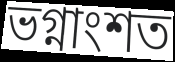
ভগ্নাংশত